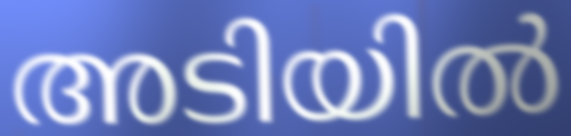
അടിയിൽ